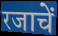
रजाचें